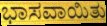
ಭಾಸವಾಯಿತು